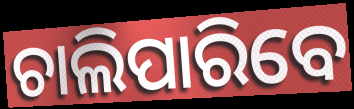
ଚାଲିପାରିବେ